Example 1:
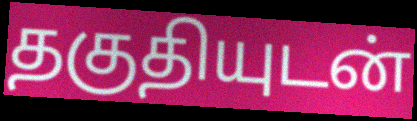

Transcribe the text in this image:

தகுதியுடன்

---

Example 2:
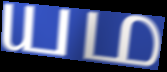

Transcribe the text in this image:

யம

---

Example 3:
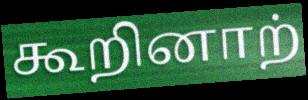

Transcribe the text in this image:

கூறினாற்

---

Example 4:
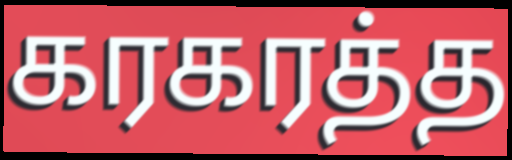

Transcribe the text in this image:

கரகரத்த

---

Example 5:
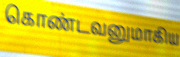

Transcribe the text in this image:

கொண்டவனுமாகிய